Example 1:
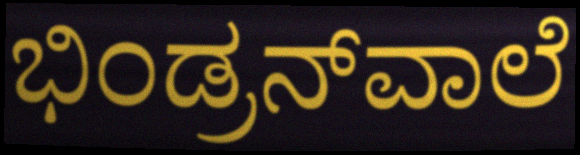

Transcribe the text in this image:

ಭಿಂಡ್ರನ್‌ವಾಲೆ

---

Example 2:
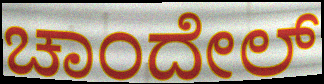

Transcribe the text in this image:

ಚಾಂದೇಲ್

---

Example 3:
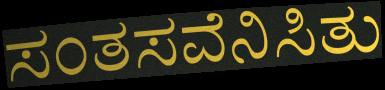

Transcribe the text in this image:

ಸಂತಸವೆನಿಸಿತು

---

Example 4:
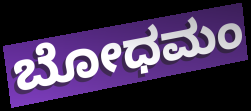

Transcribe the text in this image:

ಬೋಧಮಂ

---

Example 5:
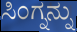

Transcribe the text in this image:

ಸಿಂಗ್ನನ್ನು